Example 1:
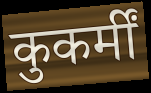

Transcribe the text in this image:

कुकर्मीं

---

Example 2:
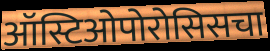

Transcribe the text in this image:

ऑस्टिओपोरोसिसचा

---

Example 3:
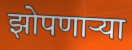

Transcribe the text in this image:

झोपणार्‍या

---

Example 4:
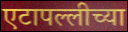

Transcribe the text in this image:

एटापल्लीच्या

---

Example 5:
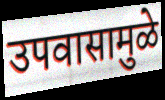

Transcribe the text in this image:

उपवासामुळे